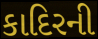
કાદિરની